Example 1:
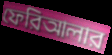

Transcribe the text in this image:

ফেরিআলার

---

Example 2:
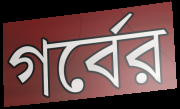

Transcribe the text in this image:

গর্বের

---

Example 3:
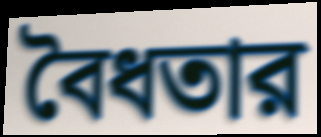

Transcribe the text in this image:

বৈধতার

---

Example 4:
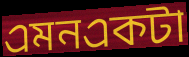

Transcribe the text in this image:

এমনএকটা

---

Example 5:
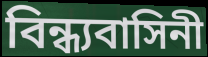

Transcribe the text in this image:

বিন্ধ্যবাসিনী